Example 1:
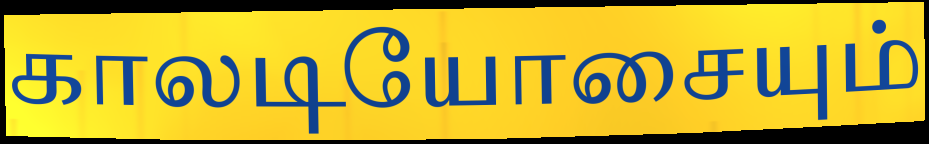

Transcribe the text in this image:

காலடியோசையும்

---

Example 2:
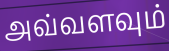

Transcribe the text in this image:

அவ்வளவும்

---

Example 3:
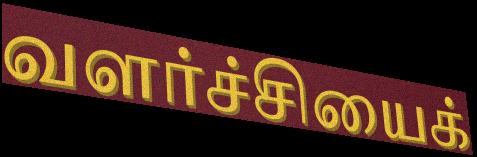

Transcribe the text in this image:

வளர்ச்சியைக்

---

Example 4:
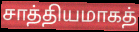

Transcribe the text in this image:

சாத்தியமாகத்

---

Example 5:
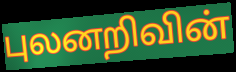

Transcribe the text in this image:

புலனறிவின்